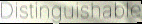
Distinguishable